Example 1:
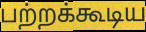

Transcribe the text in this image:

பற்றக்கூடிய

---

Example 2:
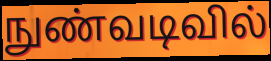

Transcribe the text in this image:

நுண்வடிவில்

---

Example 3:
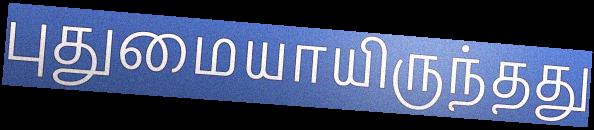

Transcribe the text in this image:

புதுமையாயிருந்தது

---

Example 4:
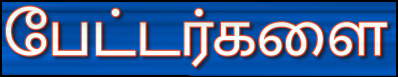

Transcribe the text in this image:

பேட்டர்களை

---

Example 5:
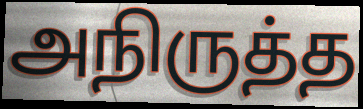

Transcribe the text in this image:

அநிருத்த